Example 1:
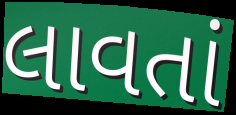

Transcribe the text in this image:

લાવતાં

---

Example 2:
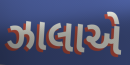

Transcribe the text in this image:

ઝાલાએ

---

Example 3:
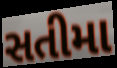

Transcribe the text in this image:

સતીમા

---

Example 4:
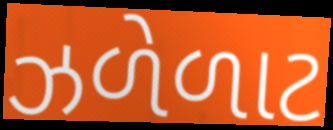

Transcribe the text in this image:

ઝળેળાટ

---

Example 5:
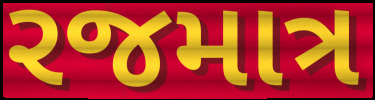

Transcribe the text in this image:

રજમાત્ર